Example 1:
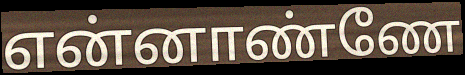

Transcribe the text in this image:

என்னாண்ணே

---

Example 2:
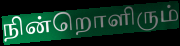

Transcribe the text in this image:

நின்றொளிரும்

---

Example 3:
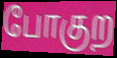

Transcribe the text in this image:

போகுற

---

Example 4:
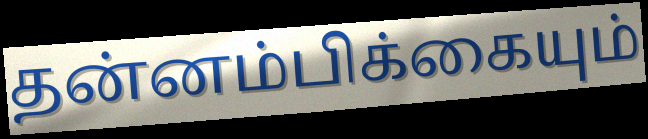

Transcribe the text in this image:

தன்னம்பிக்கையும்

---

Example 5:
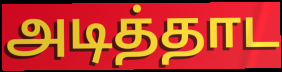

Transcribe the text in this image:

அடித்தாட